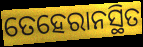
ତେହେରାନସ୍ଥିତ